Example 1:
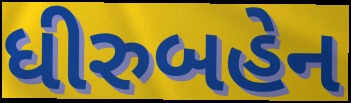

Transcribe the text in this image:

ધીરુબહેન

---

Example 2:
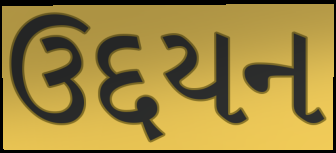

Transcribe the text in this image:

ઉદ્દયન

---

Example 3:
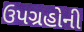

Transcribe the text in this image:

ઉપગ્રહોની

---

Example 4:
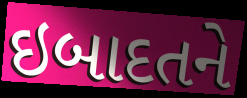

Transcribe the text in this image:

ઇબાદતને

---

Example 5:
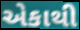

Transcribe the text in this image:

એકાથી